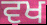
ਵਖ